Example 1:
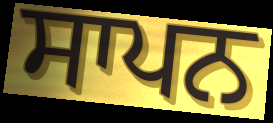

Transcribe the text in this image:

ਸਾਪਨ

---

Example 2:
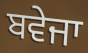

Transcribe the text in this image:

ਬਵੇਜਾ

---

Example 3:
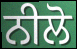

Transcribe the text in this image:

ਨੀਲੋ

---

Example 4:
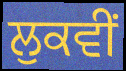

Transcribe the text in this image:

ਲੁਕਵੀਂ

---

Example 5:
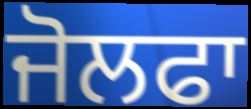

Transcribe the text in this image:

ਜੋਲਫਾ